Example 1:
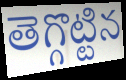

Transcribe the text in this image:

తెగ్గొట్టిన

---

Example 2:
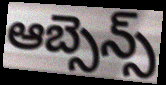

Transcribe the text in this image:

ఆబ్సెన్స్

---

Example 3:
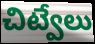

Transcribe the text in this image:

చిట్వేలు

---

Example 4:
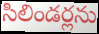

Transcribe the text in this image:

సిలిండర్లను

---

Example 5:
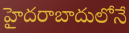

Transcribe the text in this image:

హైదరాబాదులోనే